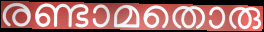
രണ്ടാമതൊരു